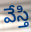
వేస్తి